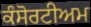
ਕੰਸੋਰਟੀਅਮ